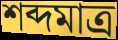
শব্দমাত্র